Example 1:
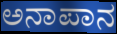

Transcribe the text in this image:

ಅನಾಪಾನ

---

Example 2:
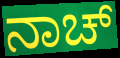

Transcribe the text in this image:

ನಾಚ್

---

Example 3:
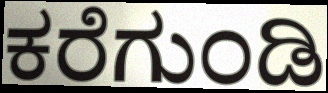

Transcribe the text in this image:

ಕರೆಗುಂಡಿ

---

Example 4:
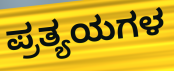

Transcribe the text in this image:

ಪ್ರತ್ಯಯಗಳ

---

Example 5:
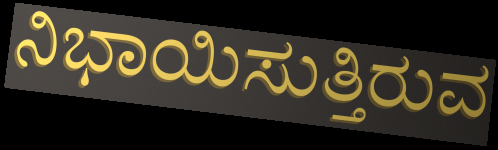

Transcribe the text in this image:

ನಿಭಾಯಿಸುತ್ತಿರುವ